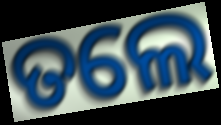
ତଲେ